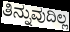
ತಿನ್ನುವುದಿಲ್ಲ